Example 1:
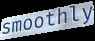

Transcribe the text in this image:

smoothly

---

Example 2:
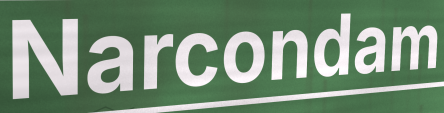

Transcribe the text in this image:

Narcondam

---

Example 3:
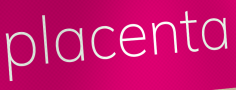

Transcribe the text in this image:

placenta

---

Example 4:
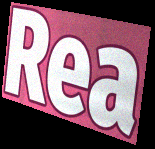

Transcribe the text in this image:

Rea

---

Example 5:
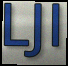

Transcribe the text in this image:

LJI